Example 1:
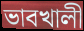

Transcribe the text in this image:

ভাবখালী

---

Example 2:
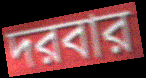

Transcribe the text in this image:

দরবার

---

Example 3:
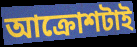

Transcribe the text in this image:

আক্রোশটাই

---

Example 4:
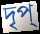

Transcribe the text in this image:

দৃপ্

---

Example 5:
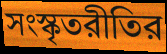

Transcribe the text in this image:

সংস্কৃতরীতির